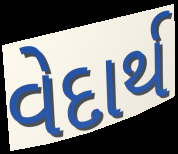
વેદાર્થ